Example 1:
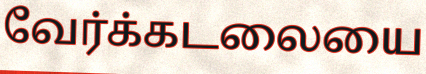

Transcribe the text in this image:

வேர்க்கடலையை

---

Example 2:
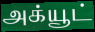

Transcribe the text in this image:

அக்யூட்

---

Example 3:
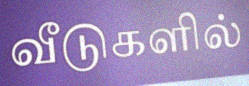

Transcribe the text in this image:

வீடுகளில்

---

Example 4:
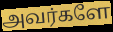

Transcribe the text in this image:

அவர்களே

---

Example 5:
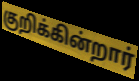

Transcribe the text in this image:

குறிக்கின்றார்